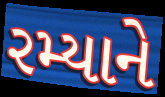
રમ્યાને